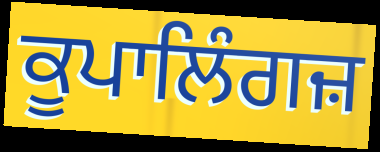
ਕੂਪਾਲਿੰਗਜ਼